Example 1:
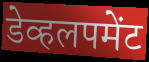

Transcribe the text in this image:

डेव्हलपमेंट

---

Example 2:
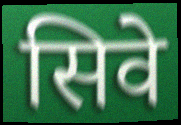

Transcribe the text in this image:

सिवे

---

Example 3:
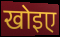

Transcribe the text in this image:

खोइए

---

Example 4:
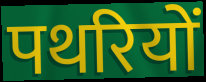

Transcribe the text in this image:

पथरियों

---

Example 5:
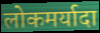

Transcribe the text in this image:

लोकमर्यादा